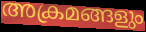
അക്രമങ്ങളും